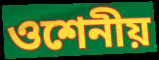
ওশেনীয়